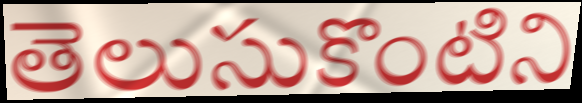
తెలుసుకొంటిని